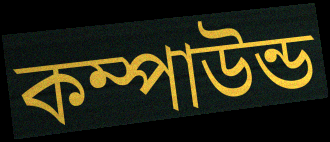
কম্পাউন্ড